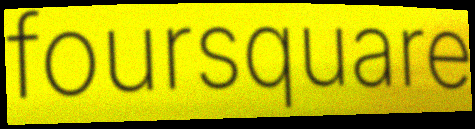
foursquare